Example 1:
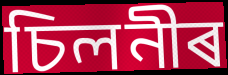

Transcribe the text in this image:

চিলনীৰ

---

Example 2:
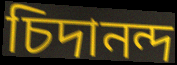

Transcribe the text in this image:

চিদানন্দ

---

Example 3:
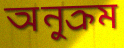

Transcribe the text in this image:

অনুক্ৰম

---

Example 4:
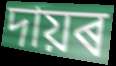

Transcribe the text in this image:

দায়ৰ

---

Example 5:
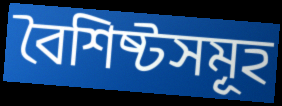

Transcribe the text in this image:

বৈশিষ্টসমূহ